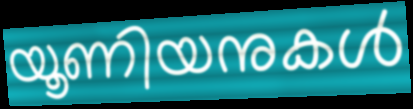
യൂണിയനുകൾ